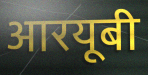
आरयूबी